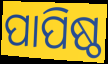
ପାପିଷ୍ଠ